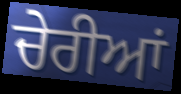
ਚੇਰੀਆਂ